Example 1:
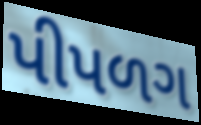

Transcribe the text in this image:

પીપળગ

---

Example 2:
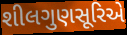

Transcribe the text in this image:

શીલગુણસૂરિએ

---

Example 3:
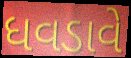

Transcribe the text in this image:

ધવડાવે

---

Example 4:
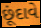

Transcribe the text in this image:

છૂંદાવે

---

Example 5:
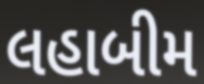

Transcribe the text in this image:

લહાબીમ